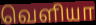
வெளியா